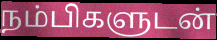
நம்பிகளுடன்